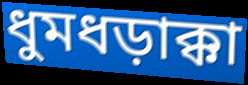
ধুমধড়াক্কা